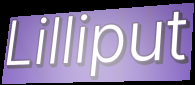
Lilliput